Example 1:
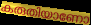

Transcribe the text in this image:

കരുതിയാണോ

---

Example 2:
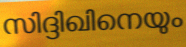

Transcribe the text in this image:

സിദ്ദിഖിനെയും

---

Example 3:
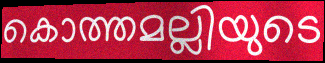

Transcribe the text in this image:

കൊത്തമല്ലിയുടെ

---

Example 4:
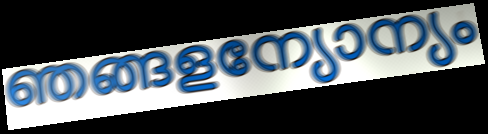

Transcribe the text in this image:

ഞങ്ങളന്യോന്യം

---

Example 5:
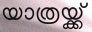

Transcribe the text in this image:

യാത്രയ്ക്ക്